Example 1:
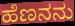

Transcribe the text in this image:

ಹೆಣನನು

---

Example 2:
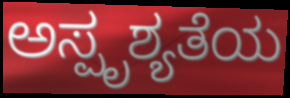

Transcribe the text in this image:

ಅಸ್ಪೃಶ್ಯತೆಯ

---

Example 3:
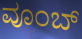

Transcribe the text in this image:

ವೂಂಬ್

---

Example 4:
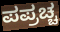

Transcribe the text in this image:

ಪಪ್ರಚ್ಚ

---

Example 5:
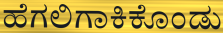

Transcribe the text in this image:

ಹೆಗಲಿಗಾಕಿಕೊಂಡು